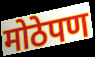
मोठेपण